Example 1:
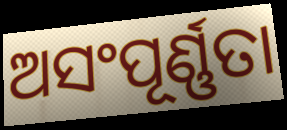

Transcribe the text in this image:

ଅସଂପୂର୍ଣ୍ଣତା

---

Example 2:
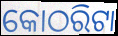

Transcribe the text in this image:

କୋଠରିଟା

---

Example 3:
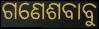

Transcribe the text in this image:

ଗଣେଶବାବୁ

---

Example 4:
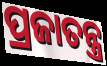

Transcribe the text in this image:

ପ୍ରଜାତନ୍ତ୍ର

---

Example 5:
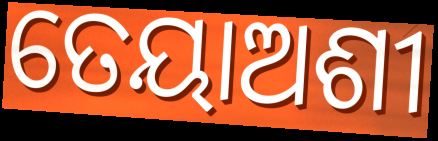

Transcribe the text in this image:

ତେୟାଅଶୀ